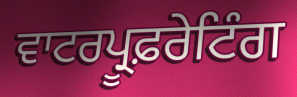
ਵਾਟਰਪ੍ਰੂਫ਼ਰੇਟਿੰਗ